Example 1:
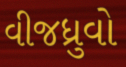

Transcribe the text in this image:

વીજધ્રુવો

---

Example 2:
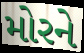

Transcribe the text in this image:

મોરને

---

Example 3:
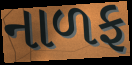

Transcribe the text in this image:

નાળફ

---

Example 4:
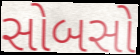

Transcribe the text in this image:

સોબસો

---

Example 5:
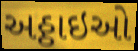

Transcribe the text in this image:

અઠ્ઠાઇઓ